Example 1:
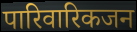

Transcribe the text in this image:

पारिवारिकजन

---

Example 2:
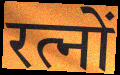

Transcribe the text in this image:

रत्‍नों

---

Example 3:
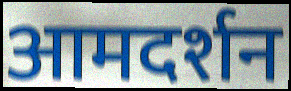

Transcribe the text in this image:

आमदर्शन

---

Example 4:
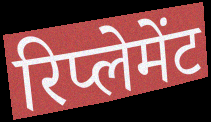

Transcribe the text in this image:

रिप्लेमेंट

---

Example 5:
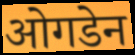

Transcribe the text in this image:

ओगडेन